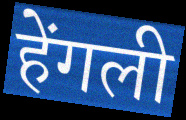
हेंगली